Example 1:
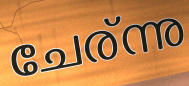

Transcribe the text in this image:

ചേര്ന്നു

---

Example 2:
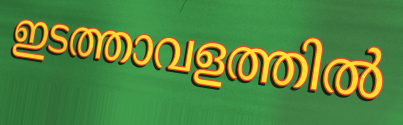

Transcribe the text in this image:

ഇടത്താവളത്തിൽ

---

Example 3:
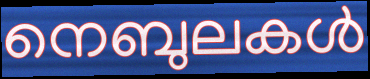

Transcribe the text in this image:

നെബുലകൾ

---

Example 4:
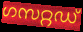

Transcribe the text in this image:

ഗസറ്റഡ്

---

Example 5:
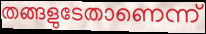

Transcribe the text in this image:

തങ്ങളുടേതാണെന്ന്